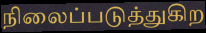
நிலைப்படுத்துகிற